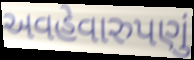
અવહેવારુપણું